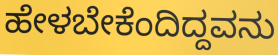
ಹೇಳಬೇಕೆಂದಿದ್ದವನು